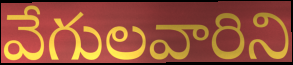
వేగులవారిని